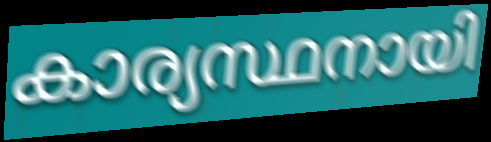
കാര്യസ്ഥനായി